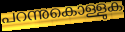
പറന്നുകൊള്ളുക